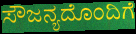
ಸೌಜನ್ಯದೊಂದಿಗೆ